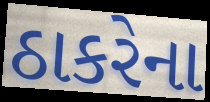
ઠાકરેના